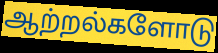
ஆற்றல்களோடு